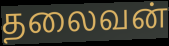
தலைவன்